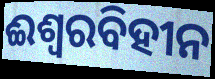
ଈଶ୍ୱରବିହୀନ